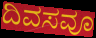
ದಿವಸವೂ